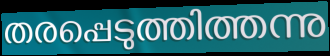
തരപ്പെടുത്തിത്തന്നു